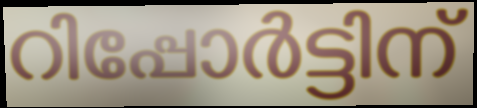
റിപ്പോർട്ടിന്